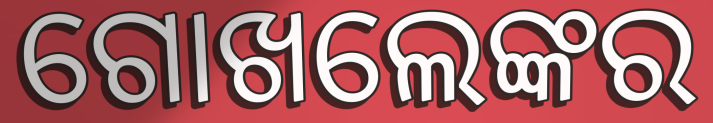
ଗୋଖଲେଙ୍କର